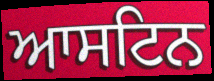
ਆਸਟਿਨ